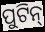
ପୁଟିନ୍